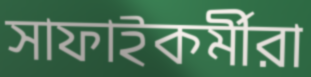
সাফাইকর্মীরা